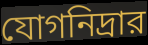
যোগনিদ্রার